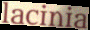
lacinia